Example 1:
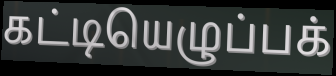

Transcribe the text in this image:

கட்டியெழுப்பக்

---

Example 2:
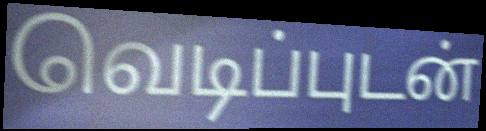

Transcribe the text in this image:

வெடிப்புடன்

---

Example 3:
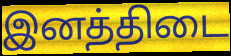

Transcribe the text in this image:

இனத்திடை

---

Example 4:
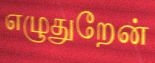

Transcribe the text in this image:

எழுதுறேன்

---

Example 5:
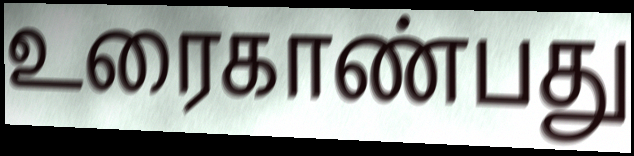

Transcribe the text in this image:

உரைகாண்பது